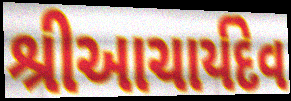
શ્રીઆચાર્યદેવ